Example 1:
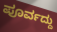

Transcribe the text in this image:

ಪೂರ್ವದ್ದು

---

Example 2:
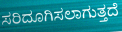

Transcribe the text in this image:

ಸರಿದೂಗಿಸಲಾಗುತ್ತದೆ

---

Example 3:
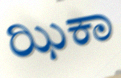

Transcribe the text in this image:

ಝಿಕಾ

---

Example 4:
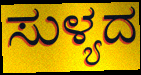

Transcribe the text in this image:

ಸುಳ್ಯದ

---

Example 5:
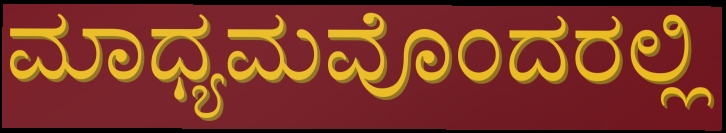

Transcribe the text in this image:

ಮಾಧ್ಯಮವೊಂದರಲ್ಲಿ